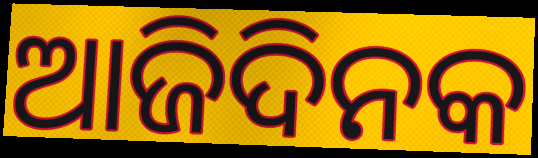
ଆଜିଦିନକ